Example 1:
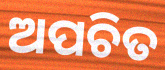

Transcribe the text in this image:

ଅପଚିତ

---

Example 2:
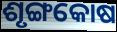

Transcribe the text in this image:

ଶୃଙ୍ଗକୋଷ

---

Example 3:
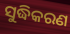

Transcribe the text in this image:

ସୁଦ୍ଧିକରଣ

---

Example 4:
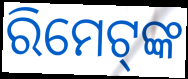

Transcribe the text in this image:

ରିମେଟ୍‍ଙ୍କ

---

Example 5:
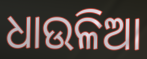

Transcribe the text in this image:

ଧାଉଳିଆ